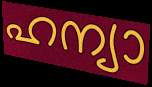
ഹന്യാ